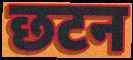
छटन